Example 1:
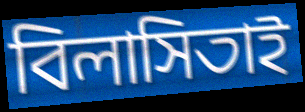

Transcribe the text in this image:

বিলাসিতাই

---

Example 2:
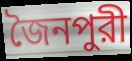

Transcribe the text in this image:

জৈনপুরী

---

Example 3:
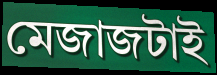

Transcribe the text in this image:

মেজাজটাই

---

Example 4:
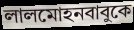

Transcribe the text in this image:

লালমোহনবাবুকে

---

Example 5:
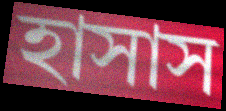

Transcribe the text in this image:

হাসাস